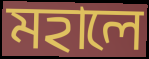
মহালে